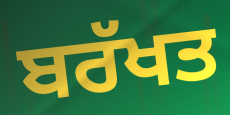
ਬਰੱਖਤ